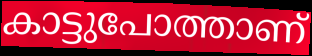
കാട്ടുപോത്താണ്